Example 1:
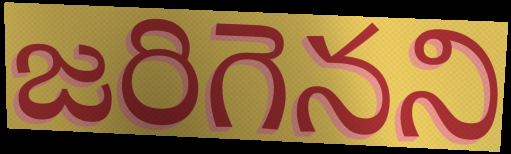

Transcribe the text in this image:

జరిగెనని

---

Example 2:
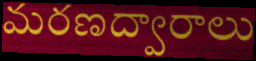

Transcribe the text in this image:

మరణద్వారాలు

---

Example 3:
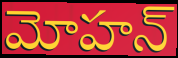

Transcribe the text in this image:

మోహన్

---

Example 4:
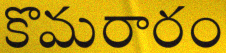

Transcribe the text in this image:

కొమరారం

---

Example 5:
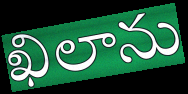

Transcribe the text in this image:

ఖిలాను